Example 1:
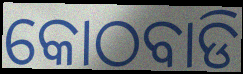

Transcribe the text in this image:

କୋଠବାଡି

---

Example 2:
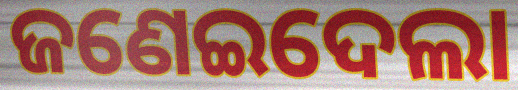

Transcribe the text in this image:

ଜଣେଇଦେଲା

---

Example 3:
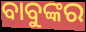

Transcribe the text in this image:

ବାବୁଙ୍କର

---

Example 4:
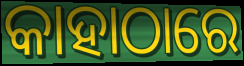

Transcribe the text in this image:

କାହାଠାରେ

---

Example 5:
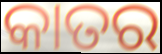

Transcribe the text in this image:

କାତର